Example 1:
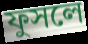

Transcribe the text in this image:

ফুসলে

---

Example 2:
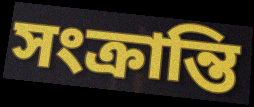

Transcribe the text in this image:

সংক্রান্তি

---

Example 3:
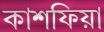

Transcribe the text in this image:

কাশফিয়া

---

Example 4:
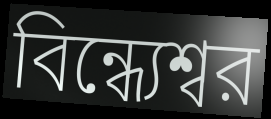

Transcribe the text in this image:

বিন্ধ্যেশ্বর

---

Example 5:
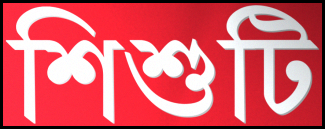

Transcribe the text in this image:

শিশুটি